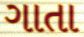
ગાતા